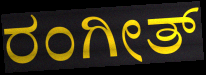
ರಂಗೀತ್